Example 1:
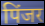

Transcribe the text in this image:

पिंजर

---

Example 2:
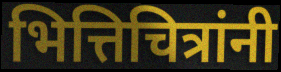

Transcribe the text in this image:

भित्तिचित्रांनी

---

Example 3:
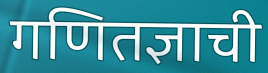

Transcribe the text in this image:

गणितज्ञाची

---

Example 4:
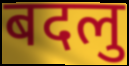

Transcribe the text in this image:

बदलु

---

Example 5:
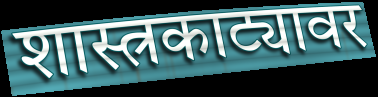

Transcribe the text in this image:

शास्त्रकाट्यावर